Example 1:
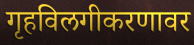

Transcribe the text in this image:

गृहविलगीकरणावर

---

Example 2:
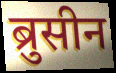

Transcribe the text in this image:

ब्रुसीन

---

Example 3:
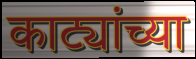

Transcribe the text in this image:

काट्यांच्या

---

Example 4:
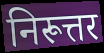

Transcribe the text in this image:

निरूत्तर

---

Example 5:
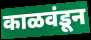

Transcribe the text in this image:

काळवंडून